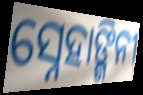
ସ୍ନେହାଙ୍ଗିନୀ